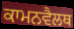
ਕਾਮਨਵੈਲਥ